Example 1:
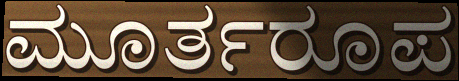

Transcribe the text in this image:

ಮೂರ್ತರೂಪ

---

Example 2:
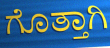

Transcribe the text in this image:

ಗೊತ್ತಾಗಿ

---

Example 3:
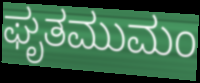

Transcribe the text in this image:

ಘೃತಮುಮಂ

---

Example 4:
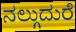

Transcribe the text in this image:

ನಲ್ಗುದುರೆ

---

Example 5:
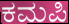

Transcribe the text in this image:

ಕಮಪಿ